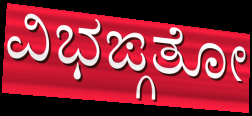
ವಿಭಙ್ಗತೋ